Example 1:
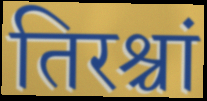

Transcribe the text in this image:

तिरश्चां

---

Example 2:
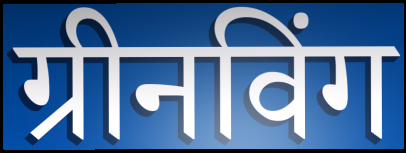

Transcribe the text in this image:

ग्रीनविंग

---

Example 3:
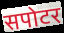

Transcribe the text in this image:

सपोटर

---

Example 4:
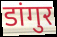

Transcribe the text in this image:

डांगुर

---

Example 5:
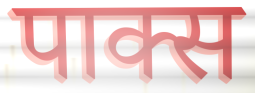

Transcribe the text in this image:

पाक्स